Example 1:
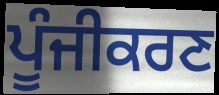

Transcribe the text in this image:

ਪੂੰਜੀਕਰਣ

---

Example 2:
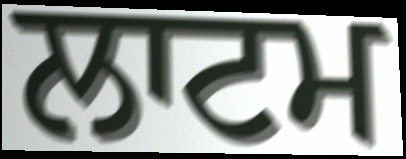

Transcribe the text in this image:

ਲਾਟਮ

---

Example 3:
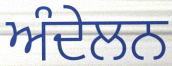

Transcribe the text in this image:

ਅੰਦੇਲਨ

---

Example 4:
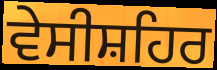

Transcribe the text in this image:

ਵੇਸੀਸ਼ਹਿਰ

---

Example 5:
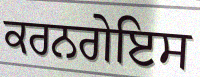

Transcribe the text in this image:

ਕਰਨਗੇਇਸ